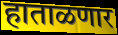
हाताळणार